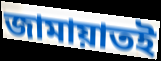
জামায়াতই